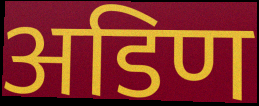
अडिण